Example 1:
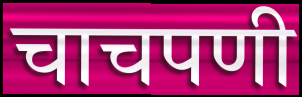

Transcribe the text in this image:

चाचपणी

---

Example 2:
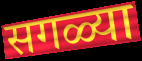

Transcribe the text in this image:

सगळ्या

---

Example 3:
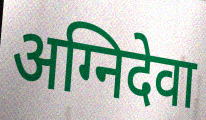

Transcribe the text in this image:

अग्निदेवा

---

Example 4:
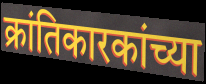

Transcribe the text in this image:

क्रांतिकारकांच्या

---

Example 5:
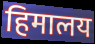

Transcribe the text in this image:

हिमालय